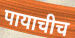
पायाचीच